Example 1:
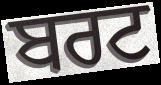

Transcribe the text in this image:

ਬਰਟ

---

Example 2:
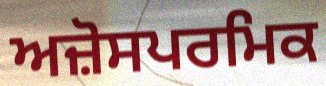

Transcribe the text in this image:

ਅਜ਼ੋਸਪਰਮਿਕ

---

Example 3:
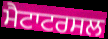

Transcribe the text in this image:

ਮੈਟਾਟਰਸਲ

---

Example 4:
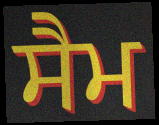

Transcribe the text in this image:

ਸੈਮ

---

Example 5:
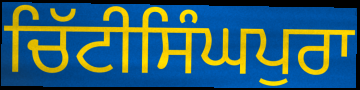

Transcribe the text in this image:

ਚਿੱਟੀਸਿੰਘਪੁਰਾ